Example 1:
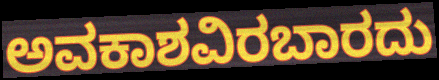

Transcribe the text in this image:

ಅವಕಾಶವಿರಬಾರದು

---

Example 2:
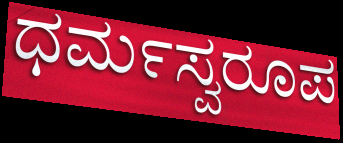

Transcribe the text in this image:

ಧರ್ಮಸ್ವರೂಪ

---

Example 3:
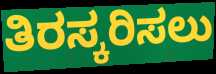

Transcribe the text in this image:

ತಿರಸ್ಕರಿಸಲು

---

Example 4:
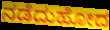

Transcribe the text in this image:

ನಡೆದುಹೋದ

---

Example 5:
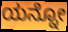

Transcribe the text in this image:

ಯನ್ನೋ